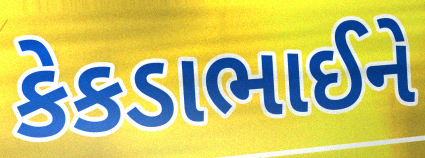
કેકડાભાઈને